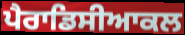
ਪੈਰਾਡਿਸੀਆਕਲ